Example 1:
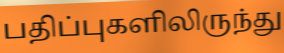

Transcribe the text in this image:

பதிப்புகளிலிருந்து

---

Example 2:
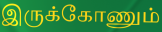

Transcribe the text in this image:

இருக்கோணும்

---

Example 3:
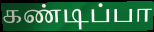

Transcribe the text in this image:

கண்டிப்பா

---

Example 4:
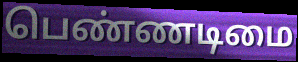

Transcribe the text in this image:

பெண்ணடிமை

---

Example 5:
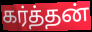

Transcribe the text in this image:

கர்த்தன்